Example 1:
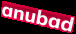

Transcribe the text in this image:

anubad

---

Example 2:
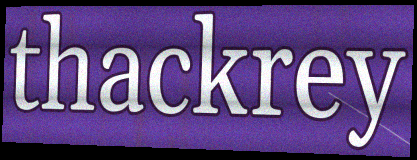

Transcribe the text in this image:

thackrey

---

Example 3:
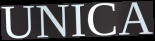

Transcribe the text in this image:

UNICA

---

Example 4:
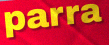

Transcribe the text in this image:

parra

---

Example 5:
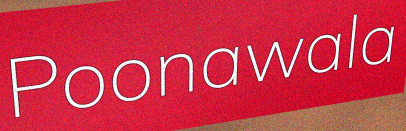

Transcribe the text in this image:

Poonawala